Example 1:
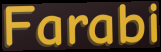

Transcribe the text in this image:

Farabi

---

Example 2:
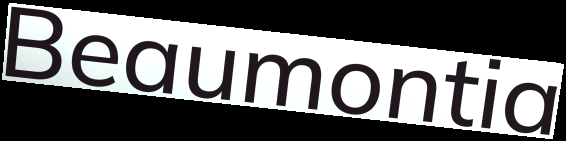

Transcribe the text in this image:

Beaumontia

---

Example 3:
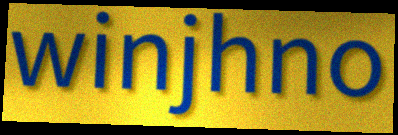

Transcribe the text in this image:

winjhno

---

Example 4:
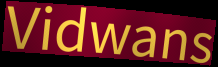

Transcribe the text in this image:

Vidwans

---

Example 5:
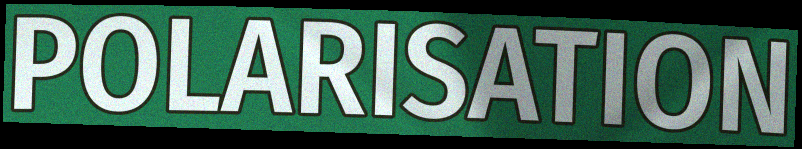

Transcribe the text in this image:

POLARISATION